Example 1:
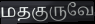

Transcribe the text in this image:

மதகுருவே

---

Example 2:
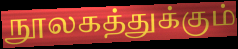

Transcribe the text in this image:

நூலகத்துக்கும்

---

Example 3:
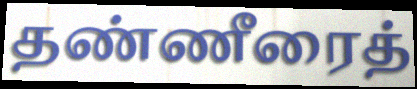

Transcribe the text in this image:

தண்ணீரைத்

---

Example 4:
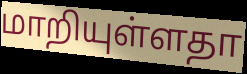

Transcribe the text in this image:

மாறியுள்ளதா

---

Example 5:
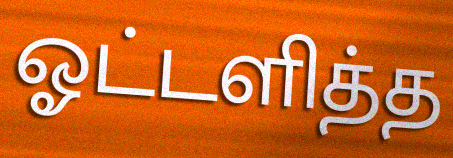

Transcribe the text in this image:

ஓட்டளித்த